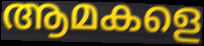
ആമകളെ